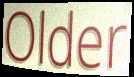
Older